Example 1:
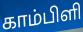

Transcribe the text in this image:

காம்பிளி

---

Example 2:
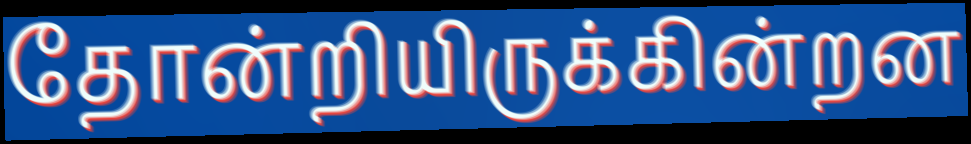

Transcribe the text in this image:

தோன்றியிருக்கின்றன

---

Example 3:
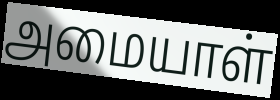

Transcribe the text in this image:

அமையாள்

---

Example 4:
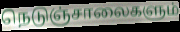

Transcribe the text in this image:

நெடுஞ்சாலைகளும்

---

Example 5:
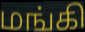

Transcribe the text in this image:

மங்கி